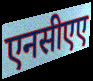
एनसीएए